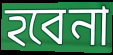
হবেনা